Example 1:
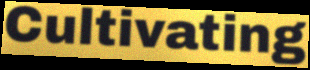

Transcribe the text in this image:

Cultivating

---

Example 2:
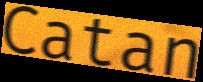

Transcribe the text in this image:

Catan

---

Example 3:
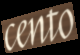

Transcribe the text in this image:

cento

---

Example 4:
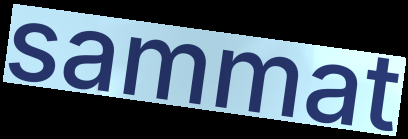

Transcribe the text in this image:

sammat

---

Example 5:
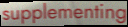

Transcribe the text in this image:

supplementing